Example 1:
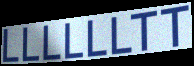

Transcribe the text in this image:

LLLLLLTT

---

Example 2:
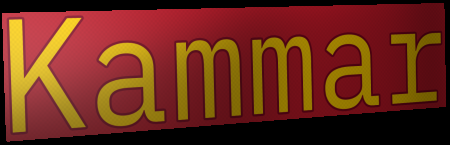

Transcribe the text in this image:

Kammar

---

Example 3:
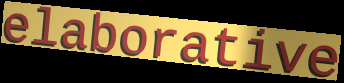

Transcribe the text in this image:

elaborative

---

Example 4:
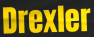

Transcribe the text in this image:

Drexler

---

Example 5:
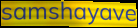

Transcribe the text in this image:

samshayave